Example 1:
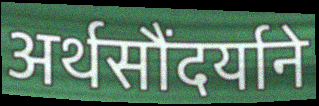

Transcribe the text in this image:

अर्थसौंदर्याने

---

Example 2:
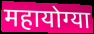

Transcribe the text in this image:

महायोग्या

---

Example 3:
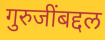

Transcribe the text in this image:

गुरुजींबद्दल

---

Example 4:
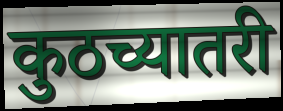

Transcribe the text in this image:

कुठच्यातरी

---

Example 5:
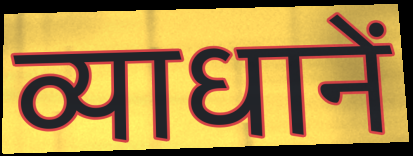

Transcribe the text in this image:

व्याधानें